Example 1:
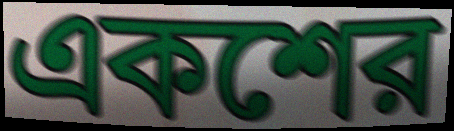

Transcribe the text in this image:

একশের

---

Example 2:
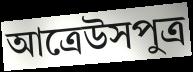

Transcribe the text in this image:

আত্রেউসপুত্র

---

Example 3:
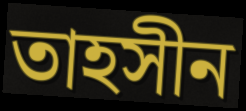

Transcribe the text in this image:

তাহসীন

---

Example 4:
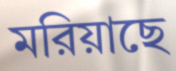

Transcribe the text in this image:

মরিয়াছে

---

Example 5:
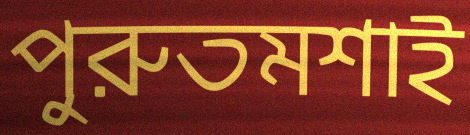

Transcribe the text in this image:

পুরুতমশাই